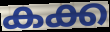
കക്ക